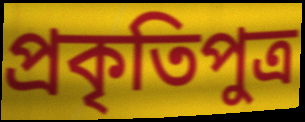
প্রকৃতিপুত্র